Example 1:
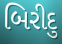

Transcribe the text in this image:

બિરીદુ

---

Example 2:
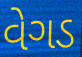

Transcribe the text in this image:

વેગડ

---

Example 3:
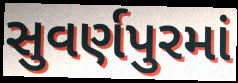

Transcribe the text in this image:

સુવર્ણપુરમાં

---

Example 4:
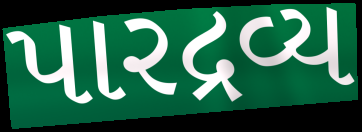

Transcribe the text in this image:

પારદ્રવ્ય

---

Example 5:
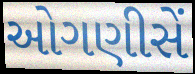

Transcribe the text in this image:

ઓગણીસેં